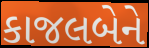
કાજલબેને